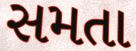
સમતા